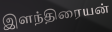
இளந்திரையன்